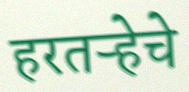
हरतऱ्हेचे